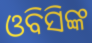
ଓବିସିଙ୍କ